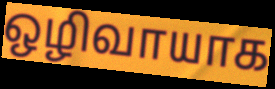
ஒழிவாயாக